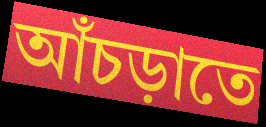
আঁচড়াতে